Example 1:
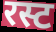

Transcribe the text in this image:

रस्ट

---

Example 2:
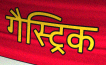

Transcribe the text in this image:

गैस्ट्रिक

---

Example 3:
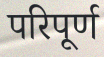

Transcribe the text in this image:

परिपूर्ण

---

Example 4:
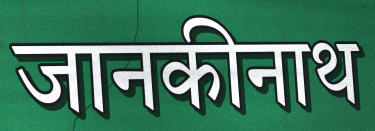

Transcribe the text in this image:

जानकीनाथ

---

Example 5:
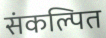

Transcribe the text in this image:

संकल्पित